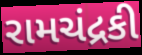
રામચંદ્રકી